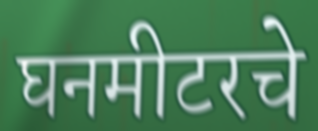
घनमीटरचे